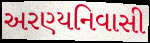
અરણ્યનિવાસી